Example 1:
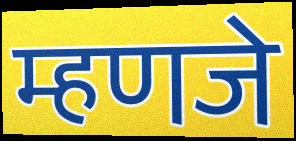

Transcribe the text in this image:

म्हणजे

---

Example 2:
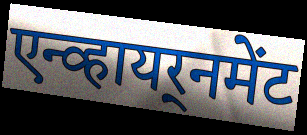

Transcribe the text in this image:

एन्व्हायर्नमेंट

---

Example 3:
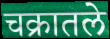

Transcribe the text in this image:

चक्रातले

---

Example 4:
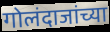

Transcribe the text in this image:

गोलंदाजांच्या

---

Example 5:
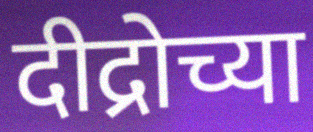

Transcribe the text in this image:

दीद्रोच्या